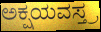
ಅಕ್ಷಯವಸ್ತ್ರ